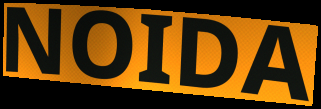
NOIDA